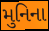
મુનિના